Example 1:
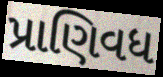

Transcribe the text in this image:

પ્રાણિવધ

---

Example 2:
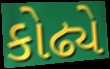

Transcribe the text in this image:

કોઢ્યે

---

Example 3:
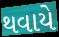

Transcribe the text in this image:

થવાયે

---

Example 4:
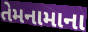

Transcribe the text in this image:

તેમનામાના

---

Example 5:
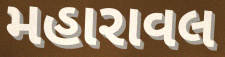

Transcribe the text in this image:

મહારાવલ